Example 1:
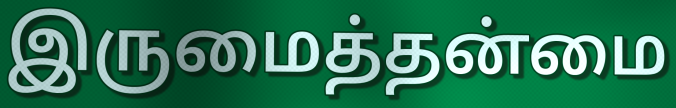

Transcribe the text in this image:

இருமைத்தன்மை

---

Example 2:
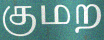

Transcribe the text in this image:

குமற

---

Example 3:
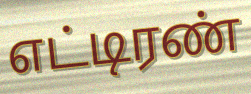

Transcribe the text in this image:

எட்டிரண்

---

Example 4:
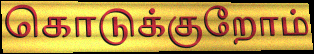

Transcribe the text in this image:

கொடுக்குறோம்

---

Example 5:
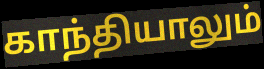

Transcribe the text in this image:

காந்தியாலும்